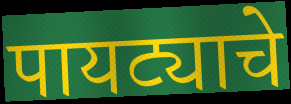
पायट्याचे